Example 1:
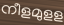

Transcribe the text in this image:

നീളമുളള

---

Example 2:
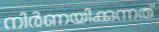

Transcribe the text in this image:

നിർണയിക്കുന്നത്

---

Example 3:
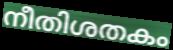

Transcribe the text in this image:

നീതിശതകം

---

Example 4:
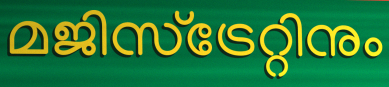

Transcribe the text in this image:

മജിസ്ട്രേറ്റിനും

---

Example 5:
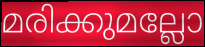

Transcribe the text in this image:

മരിക്കുമല്ലോ